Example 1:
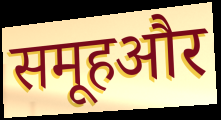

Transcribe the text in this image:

समूहऔर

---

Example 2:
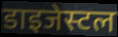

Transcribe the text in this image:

डाइजेस्टल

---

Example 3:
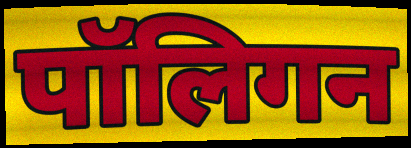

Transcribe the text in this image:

पॉलिगन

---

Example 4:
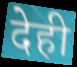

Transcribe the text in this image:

देही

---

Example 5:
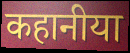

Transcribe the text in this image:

कहानीया